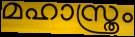
മഹാസ്ത്രം